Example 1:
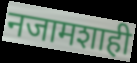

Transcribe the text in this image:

नजामशाही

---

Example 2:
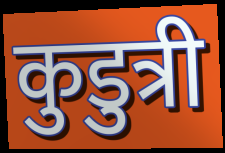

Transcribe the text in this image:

कुडुत्री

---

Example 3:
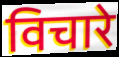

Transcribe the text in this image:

विचारे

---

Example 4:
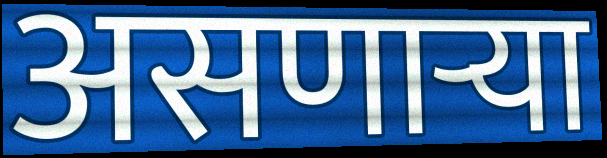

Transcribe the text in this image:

असणाऱ्या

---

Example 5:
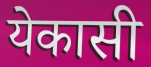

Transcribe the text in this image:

येकासी